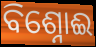
ବିଶ୍ନୋଈ